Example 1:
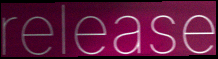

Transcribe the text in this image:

release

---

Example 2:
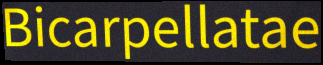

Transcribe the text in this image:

Bicarpellatae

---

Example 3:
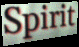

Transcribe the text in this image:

Spirit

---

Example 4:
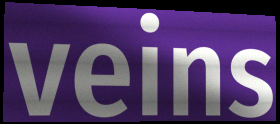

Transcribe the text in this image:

veins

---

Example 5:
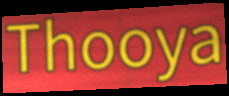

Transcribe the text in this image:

Thooya